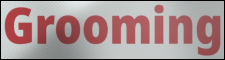
Grooming